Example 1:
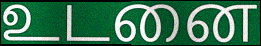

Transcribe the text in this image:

உடனை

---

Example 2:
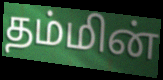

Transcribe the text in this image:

தம்மின்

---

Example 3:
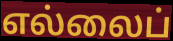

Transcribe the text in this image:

எல்லைப்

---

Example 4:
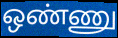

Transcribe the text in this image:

ஒண்ணு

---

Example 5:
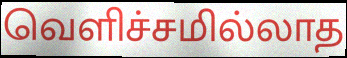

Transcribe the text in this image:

வெளிச்சமில்லாத